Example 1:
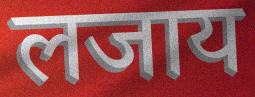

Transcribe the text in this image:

लजाय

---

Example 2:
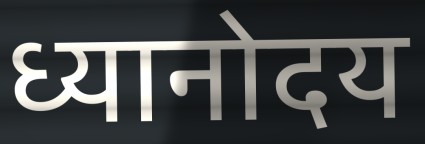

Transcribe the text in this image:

ध्यानोदय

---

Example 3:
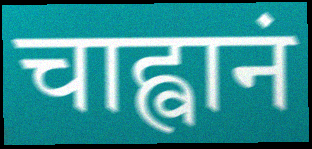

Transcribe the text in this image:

चाह्वानं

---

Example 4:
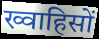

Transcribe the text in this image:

ख्वाहिसों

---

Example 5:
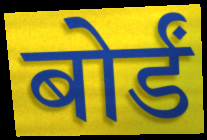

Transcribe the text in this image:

बोर्डं